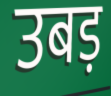
उबड़